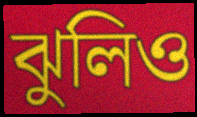
ঝুলিও